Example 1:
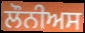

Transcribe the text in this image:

ਲੌਨੀਅਸ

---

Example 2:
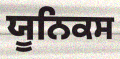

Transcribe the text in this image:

ਯੂਨਿਕਸ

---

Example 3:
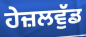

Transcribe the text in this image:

ਹੇਜ਼ਲਵੁੱਡ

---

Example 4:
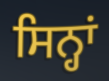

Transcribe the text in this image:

ਸਿਨ੍ਹਾਂ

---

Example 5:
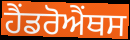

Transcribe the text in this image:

ਹੈਂਡਰੋਐਂਥਸ